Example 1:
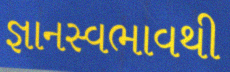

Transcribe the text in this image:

જ્ઞાનસ્વભાવથી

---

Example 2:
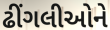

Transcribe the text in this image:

ઢીંગલીઓને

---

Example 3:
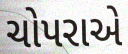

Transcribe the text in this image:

ચોપરાએ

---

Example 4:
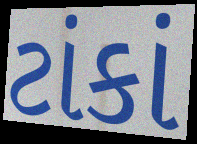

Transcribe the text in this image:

ટાંકાં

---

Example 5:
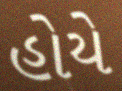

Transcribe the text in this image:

હોયે